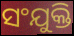
ସଂଯୁକ୍ତି